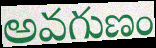
అవగుణం